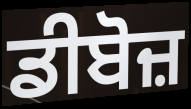
ਡੀਬੋਜ਼